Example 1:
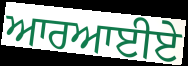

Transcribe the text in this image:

ਆਰਆਈਏ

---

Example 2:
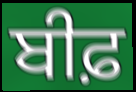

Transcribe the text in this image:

ਬੀਫ਼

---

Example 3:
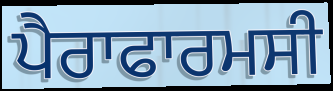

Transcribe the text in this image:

ਪੈਰਾਫਾਰਮਸੀ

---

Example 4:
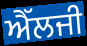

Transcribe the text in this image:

ਐੱਲਜੀ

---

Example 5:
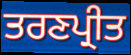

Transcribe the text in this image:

ਤਰਣਪ੍ਰੀਤ